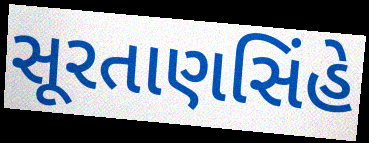
સૂરતાણસિંહે